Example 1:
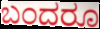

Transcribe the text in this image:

ಬಂದರೂ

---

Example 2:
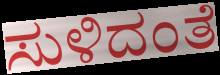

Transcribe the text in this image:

ಸುಳಿದಂತೆ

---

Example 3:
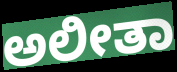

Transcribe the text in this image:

ಅಲೀತಾ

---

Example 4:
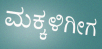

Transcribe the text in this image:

ಮಕ್ಕಳಿಗೀಗ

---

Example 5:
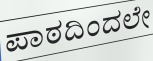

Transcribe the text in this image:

ಪಾಠದಿಂದಲೇ